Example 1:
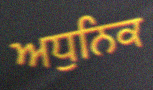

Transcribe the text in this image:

ਅਧੁਨਿਕ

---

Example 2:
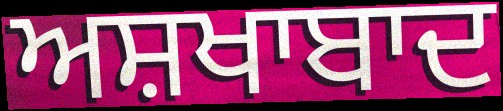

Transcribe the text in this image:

ਅਸ਼ਖਾਬਾਦ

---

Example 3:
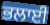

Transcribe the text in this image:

ਭਲਾਈ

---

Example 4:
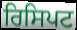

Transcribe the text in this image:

ਰਿਸਿਪਟ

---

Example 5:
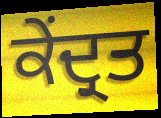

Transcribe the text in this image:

ਕੇਂਦ੍ਰਤ